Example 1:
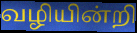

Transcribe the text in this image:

வழியின்றி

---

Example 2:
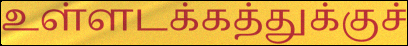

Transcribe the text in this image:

உள்ளடக்கத்துக்குச்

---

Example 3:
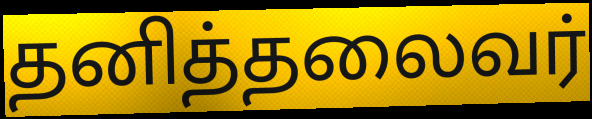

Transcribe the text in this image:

தனித்தலைவர்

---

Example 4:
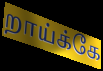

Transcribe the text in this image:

றாய்க்கே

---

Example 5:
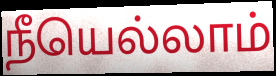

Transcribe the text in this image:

நீயெல்லாம்